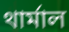
থার্মাল